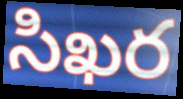
సిఖర